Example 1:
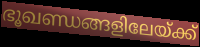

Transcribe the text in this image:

ഭൂഖണ്ഡങ്ങളിലേയ്ക്ക്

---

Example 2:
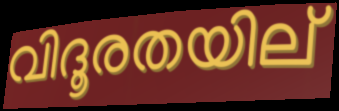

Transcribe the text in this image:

വിദൂരതയില്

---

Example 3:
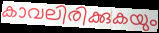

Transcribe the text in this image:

കാവലിരിക്കുകയും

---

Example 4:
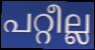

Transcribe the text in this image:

പറ്റീല്ല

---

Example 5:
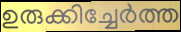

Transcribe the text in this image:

ഉരുക്കിച്ചേർത്ത